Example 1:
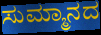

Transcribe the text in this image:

ಸುಮ್ಮಾನದ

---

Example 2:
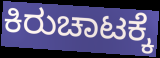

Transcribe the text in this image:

ಕಿರುಚಾಟಕ್ಕೆ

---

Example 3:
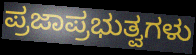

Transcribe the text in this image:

ಪ್ರಜಾಪ್ರಭುತ್ವಗಳು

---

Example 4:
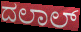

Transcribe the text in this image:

ದಲಾಲ್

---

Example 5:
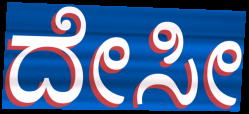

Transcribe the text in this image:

ದೇಸೀ